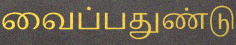
வைப்பதுண்டு